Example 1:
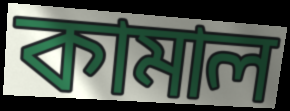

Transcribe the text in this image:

কামাল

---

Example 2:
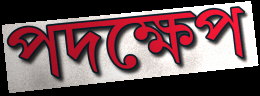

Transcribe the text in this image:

পদক্ষেপ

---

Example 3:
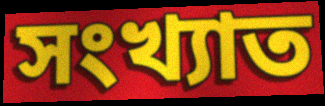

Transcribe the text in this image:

সংখ্যাত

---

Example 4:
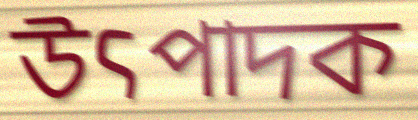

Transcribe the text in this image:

উৎপাদক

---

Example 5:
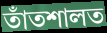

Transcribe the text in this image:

তাঁতশালত